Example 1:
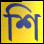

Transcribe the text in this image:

শি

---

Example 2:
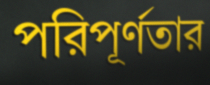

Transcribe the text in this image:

পরিপূর্ণতার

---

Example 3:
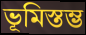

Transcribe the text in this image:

ভূমিস্তম্ভ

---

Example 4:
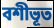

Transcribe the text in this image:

বশীভূত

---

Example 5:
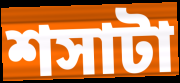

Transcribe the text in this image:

শসাটা